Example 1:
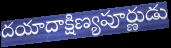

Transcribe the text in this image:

దయాదాక్షిణ్యపూర్ణుడు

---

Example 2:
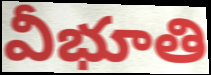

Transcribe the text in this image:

వీభూతి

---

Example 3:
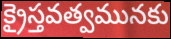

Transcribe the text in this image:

క్రైస్తవత్వమునకు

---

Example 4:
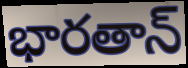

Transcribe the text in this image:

భారతాన్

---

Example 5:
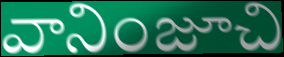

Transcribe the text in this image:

వానింజూచి